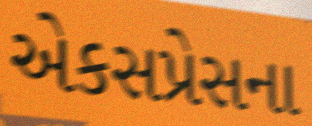
એકસપ્રેસના